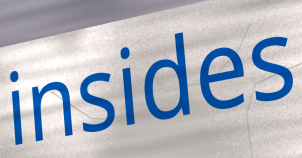
insides